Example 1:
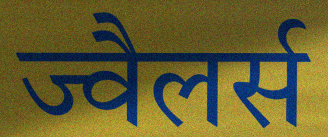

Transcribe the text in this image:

ज्वैलर्स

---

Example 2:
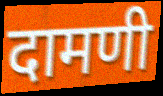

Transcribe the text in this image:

दामणी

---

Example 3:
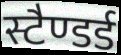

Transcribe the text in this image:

स्टैण्डर्ड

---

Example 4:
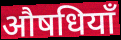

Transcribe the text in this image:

औषधियाँ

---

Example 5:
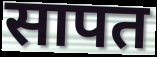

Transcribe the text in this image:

सापत